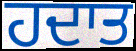
ਹਦਾਤ